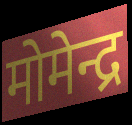
मोमेन्द्र